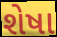
શેષા